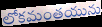
లోకమంతయును